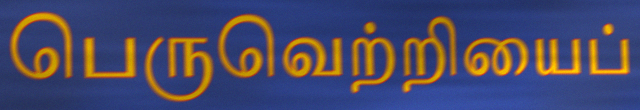
பெருவெற்றியைப்